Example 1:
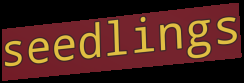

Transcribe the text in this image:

seedlings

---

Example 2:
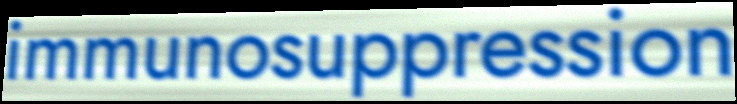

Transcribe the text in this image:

immunosuppression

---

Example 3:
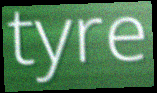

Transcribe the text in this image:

tyre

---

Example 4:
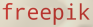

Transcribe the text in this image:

freepik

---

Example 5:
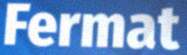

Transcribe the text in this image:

Fermat